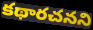
కథారచనని